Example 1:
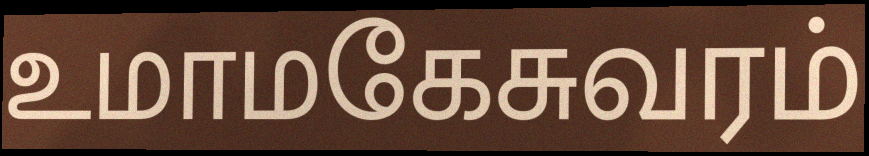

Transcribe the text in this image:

உமாமகேசுவரம்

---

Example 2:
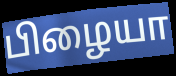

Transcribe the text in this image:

பிழையா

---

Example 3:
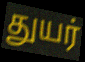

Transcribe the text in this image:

துயர்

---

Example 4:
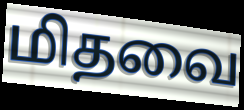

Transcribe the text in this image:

மிதவை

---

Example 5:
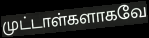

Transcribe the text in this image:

முட்டாள்களாகவே